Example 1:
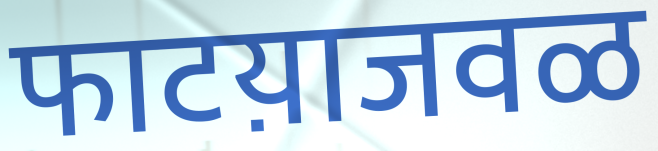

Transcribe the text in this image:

फाटय़ाजवळ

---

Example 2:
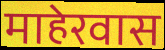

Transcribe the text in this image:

माहेरवास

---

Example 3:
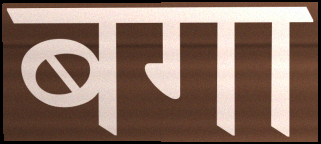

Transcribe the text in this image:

बगा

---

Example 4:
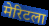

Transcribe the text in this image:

मेरिटला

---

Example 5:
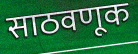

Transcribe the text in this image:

साठवणूक